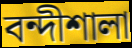
বন্দীশালা